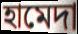
হামেদা